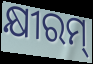
କ୍ଷୀରମ୍